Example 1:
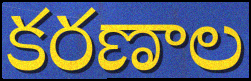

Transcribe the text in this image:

కరణాల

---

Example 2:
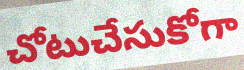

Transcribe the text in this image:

చోటుచేసుకోగా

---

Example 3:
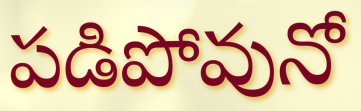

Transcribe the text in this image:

పడిపోవునో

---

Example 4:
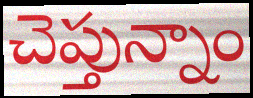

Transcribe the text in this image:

చెప్తున్నాం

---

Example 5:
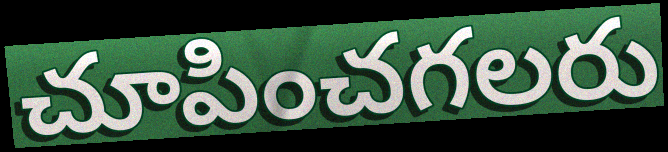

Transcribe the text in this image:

చూపించగలరు